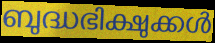
ബുദ്ധഭിക്ഷുക്കൾ